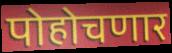
पोहोचणार